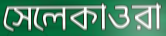
সেলেকাওরা